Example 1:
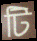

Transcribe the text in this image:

টি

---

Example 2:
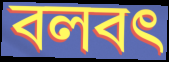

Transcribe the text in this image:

বলবৎ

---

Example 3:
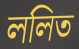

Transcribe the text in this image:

ললিত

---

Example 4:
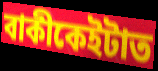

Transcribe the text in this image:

বাকীকেইটাত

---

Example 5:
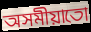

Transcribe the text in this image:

অসমীয়াতো